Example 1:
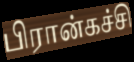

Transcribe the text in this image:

பிரான்கச்சி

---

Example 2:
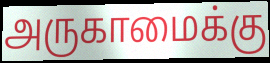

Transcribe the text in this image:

அருகாமைக்கு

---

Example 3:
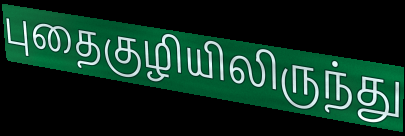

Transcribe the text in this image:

புதைகுழியிலிருந்து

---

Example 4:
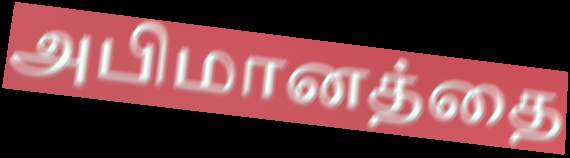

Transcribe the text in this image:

அபிமானத்தை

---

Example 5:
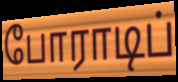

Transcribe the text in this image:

போராடிப்